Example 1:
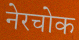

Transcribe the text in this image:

नेरचोक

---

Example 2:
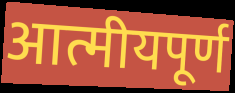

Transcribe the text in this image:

आत्मीयपूर्ण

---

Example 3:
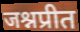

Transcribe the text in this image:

जश्नप्रीत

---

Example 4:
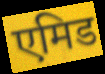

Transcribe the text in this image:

एमिड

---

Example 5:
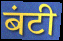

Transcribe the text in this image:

बंटी